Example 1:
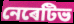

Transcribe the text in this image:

নেৰেটিভ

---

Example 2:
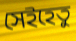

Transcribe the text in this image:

সেইহেতু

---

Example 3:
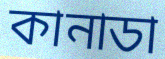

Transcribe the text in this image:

কানাডা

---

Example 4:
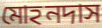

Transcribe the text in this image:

মোহনদাস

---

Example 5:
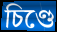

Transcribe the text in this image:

চিণ্ডে